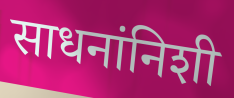
साधनांनिशी